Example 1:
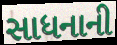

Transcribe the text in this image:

સાધનાની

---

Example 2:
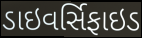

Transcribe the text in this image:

ડાઇવર્સિફાઇડ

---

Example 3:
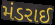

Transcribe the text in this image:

મંડરાઈ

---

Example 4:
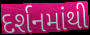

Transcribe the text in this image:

દર્શનમાંથી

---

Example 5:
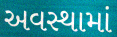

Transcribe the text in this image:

અવસ્થામાં